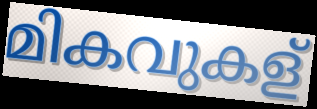
മികവുകള്